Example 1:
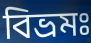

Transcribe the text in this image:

বিভ্রমঃ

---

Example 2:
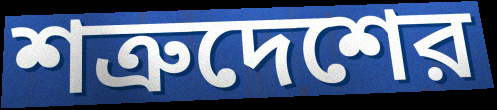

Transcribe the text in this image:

শত্রুদেশের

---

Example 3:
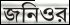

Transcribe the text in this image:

জনিওর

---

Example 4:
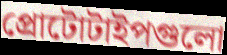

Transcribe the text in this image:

প্রোটোটাইপগুলো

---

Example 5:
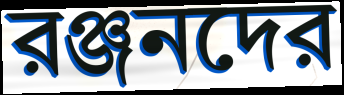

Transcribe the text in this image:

রঞ্জনদের